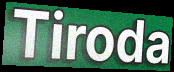
Tiroda